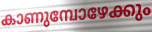
കാണുമ്പോഴേക്കും